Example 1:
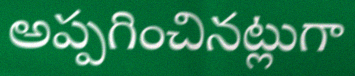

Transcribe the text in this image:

అప్పగించినట్లుగా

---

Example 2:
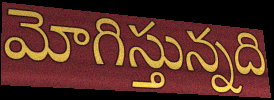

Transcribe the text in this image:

మోగిస్తున్నది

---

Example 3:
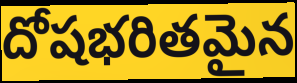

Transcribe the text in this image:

దోషభరితమైన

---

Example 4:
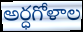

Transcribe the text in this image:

అర్ధగోళాల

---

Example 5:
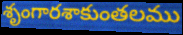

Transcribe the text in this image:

శృంగారశాకుంతలము